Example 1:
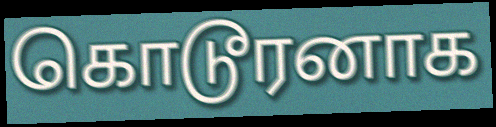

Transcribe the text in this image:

கொடூரனாக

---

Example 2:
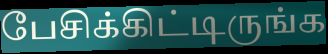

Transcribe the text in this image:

பேசிக்கிட்டிருங்க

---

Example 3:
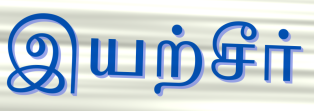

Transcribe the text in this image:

இயற்சீர்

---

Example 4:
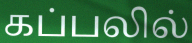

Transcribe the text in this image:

கப்பலில்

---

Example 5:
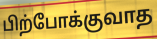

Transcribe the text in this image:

பிற்போக்குவாத